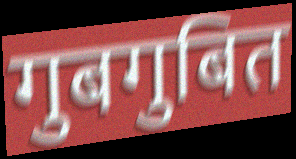
गुबगुबित